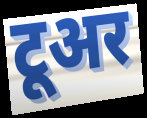
टूअर